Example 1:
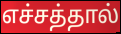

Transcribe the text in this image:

எச்சத்தால்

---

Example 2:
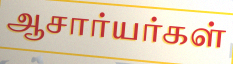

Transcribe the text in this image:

ஆசார்யர்கள்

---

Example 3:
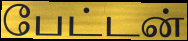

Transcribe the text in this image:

பேட்டன்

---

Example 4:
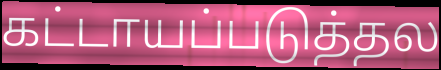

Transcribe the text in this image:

கட்டாயப்படுத்தல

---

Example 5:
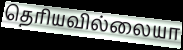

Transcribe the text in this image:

தெரியவில்லையா